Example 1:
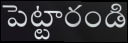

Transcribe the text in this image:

పెట్టారండి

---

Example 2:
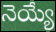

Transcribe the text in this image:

నెయ్యే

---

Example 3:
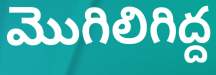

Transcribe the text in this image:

మొగిలిగిద్ద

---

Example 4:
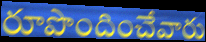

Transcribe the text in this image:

రూపొందించేవారు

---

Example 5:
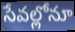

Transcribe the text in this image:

సేవల్లోనూ